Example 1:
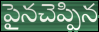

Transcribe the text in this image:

పైనచెప్పిన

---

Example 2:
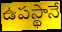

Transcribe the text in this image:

ఉపస్థానే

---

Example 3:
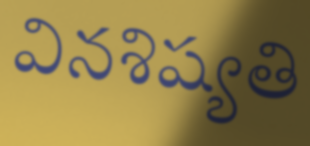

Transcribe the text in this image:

వినశిష్యతి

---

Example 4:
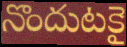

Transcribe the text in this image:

నొందుటకై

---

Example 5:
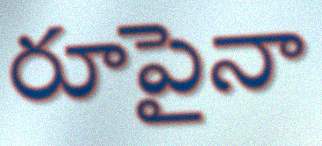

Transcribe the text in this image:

రూపైనా